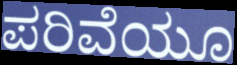
ಪರಿವೆಯೂ